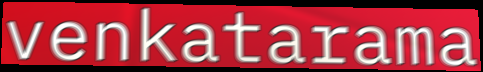
venkatarama